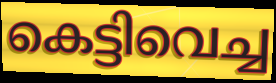
കെട്ടിവെച്ച